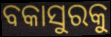
ବକାସୁରକୁ